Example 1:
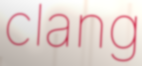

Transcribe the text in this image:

clang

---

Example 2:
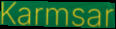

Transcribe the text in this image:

Karmsar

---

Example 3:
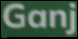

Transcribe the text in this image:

Ganj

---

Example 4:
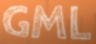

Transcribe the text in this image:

GML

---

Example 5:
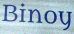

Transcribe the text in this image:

Binoy